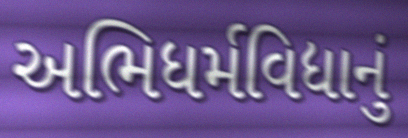
અભિધર્મવિદ્યાનું